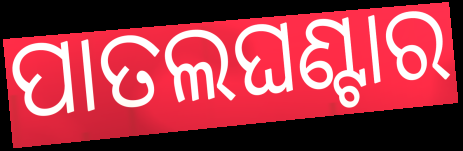
ପାତଲଘଣ୍ଟାର